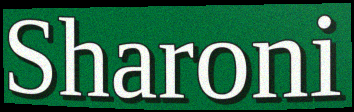
Sharoni